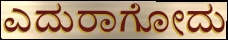
ಎದುರಾಗೋದು